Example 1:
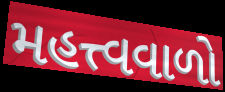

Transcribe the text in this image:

મહત્ત્વવાળો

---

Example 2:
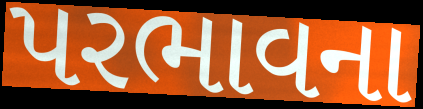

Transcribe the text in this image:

પરભાવના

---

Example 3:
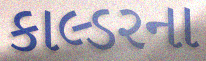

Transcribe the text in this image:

કાલ્ડરના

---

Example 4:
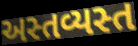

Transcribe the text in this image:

અસ્તવ્યસ્ત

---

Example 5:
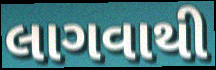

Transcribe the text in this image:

લાગવાથી